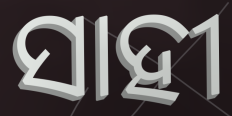
ସାହୀ